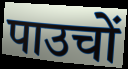
पाउचों